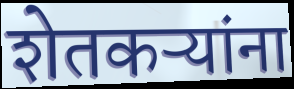
शेतकऱ्यांना